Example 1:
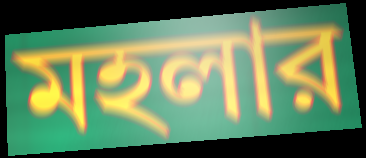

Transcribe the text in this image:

মহলার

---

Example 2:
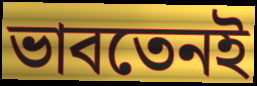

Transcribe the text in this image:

ভাবতেনই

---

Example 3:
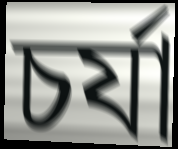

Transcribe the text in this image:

চর্যা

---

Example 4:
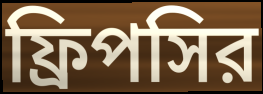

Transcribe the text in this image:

ফ্রিপসির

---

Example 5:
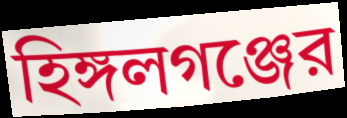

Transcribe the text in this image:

হিঙ্গলগঞ্জের